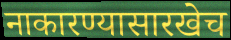
नाकारण्यासारखेच